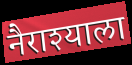
नैराश्याला